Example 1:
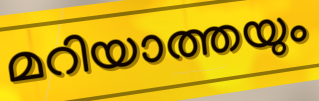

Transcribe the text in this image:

മറിയാത്തയും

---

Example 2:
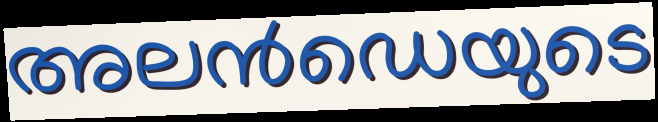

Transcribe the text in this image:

അലൻഡെയുടെ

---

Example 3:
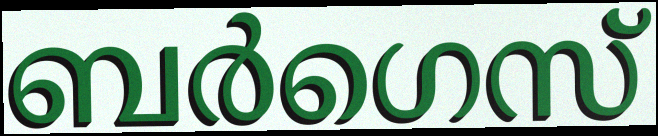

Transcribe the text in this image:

ബർഗെസ്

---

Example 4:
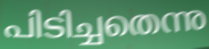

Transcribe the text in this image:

പിടിച്ചതെന്നു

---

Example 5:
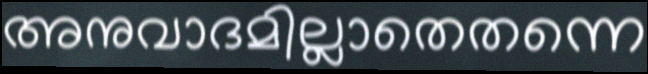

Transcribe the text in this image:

അനുവാദമില്ലാതെതന്നെ